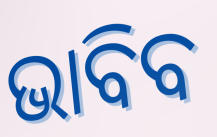
ଭାବିବ